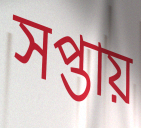
সপ্তায়